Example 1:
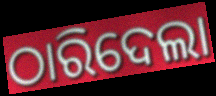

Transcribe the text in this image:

ଠାରିଦେଲା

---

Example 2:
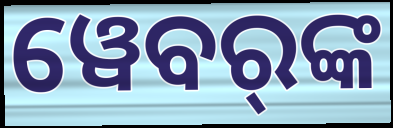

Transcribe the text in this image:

ୱେବର୍‌ଙ୍କ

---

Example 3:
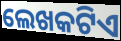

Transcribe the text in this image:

ଲେଖକଟିଏ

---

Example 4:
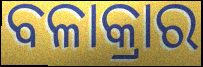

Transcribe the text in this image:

ବଳାକ୍ରାର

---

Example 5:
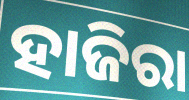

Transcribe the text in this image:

ହାଜିରା